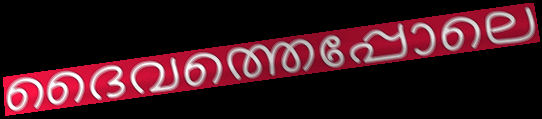
ദൈവത്തെപ്പോലെ